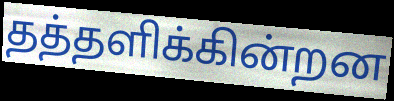
தத்தளிக்கின்றன